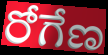
రోగేణ